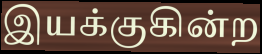
இயக்குகின்ற